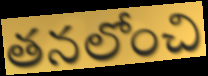
తనలోంచి